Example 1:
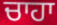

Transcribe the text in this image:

ਚਾਹਾ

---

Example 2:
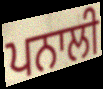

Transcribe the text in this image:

ਪਨਾਲੀ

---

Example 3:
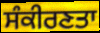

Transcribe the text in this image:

ਸੰਕੀਰਣਤਾ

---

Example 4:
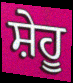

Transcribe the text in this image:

ਸ਼ੇਹੂ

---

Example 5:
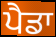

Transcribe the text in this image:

ਪੈਡਾ